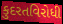
કુદરતવિરોધી